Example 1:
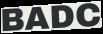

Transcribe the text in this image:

BADC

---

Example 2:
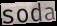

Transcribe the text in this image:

soda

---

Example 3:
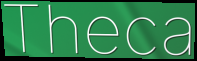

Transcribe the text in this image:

Theca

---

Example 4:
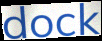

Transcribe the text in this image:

dock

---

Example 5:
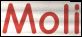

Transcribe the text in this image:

Moli